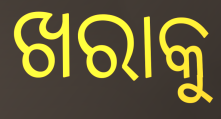
ଖରାକୁ